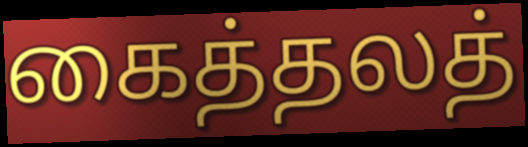
கைத்தலத்